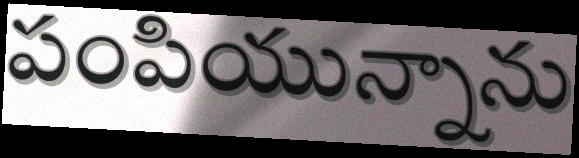
పంపియున్నాను